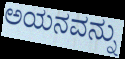
ಅಯನವನ್ನು